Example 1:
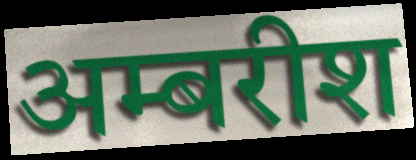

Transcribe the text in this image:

अम्बरीश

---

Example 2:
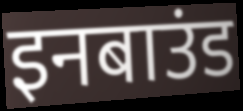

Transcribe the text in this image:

इनबाउंड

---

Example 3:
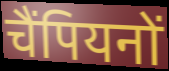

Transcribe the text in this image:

चैंपियनों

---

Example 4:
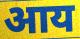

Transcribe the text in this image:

आय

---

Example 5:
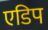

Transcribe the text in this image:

एडिप